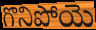
గొనిపోయె